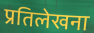
प्रतिलेखना